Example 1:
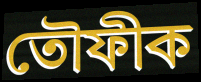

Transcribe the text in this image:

তৌফীক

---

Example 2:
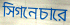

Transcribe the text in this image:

সিগনেচারে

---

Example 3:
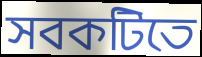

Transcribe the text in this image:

সবকটিতে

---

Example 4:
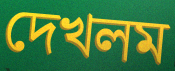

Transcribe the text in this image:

দেখলম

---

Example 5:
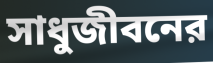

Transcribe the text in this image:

সাধুজীবনের